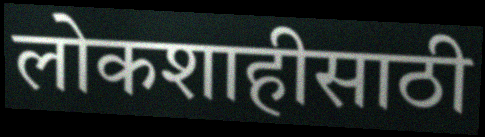
लोकशाहीसाठी